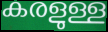
കരളുള്ള